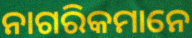
ନାଗରିକମାନେ